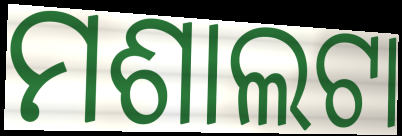
ମଶାଲଟା